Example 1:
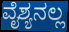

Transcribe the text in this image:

ವೈಶ್ಯನಲ್ಲ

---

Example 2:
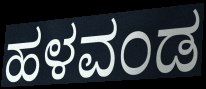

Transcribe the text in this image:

ಹಳವಂಡ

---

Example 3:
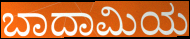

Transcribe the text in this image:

ಬಾದಾಮಿಯ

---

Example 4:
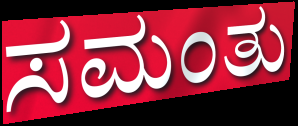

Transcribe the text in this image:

ಸಮಂತು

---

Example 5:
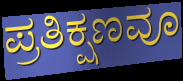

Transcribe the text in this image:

ಪ್ರತಿಕ್ಷಣವೂ